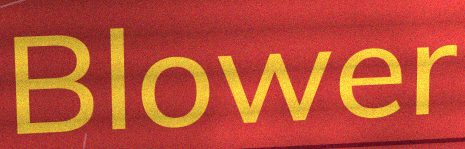
Blower